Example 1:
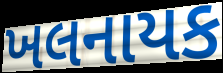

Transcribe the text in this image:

ખલનાયક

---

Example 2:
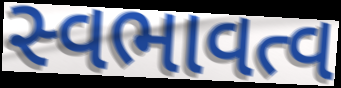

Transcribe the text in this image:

સ્વભાવત્વ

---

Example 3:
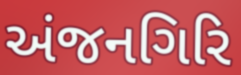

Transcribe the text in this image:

અંજનગિરિ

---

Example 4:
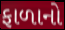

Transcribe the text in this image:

ફાળાનો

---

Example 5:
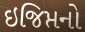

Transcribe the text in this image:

ઇજિપ્તનો